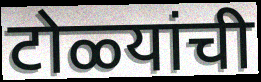
टोळ्यांची